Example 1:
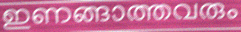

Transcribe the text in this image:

ഇണങ്ങാത്തവരും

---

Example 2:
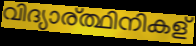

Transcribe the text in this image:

വിദ്യാര്ത്ഥിനികള്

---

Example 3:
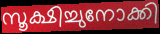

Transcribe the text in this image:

സൂക്ഷിച്ചുനോക്കി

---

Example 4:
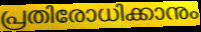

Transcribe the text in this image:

പ്രതിരോധിക്കാനും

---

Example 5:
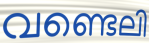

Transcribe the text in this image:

വണ്ടെലി